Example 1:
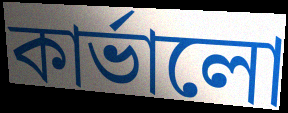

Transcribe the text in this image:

কার্ভালো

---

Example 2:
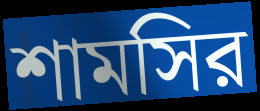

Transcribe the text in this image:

শামসির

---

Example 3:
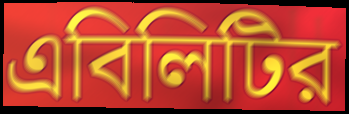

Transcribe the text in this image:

এবিলিটির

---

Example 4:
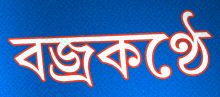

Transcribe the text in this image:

বজ্রকণ্ঠে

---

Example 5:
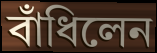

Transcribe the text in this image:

বাঁধিলেন